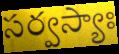
సర్వస్యాః